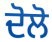
ਦੋਲੋ